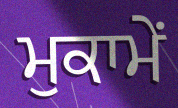
ਮੁਕਾਮੇਂ